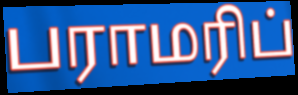
பராமரிப்